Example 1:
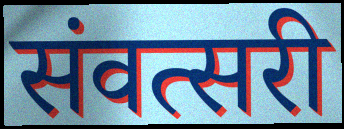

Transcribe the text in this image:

संवत्सरी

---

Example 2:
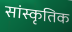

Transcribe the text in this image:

सांस्‍कृतिक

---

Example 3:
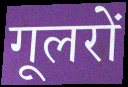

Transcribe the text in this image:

गूलरों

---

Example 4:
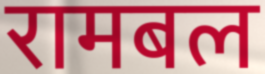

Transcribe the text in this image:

रामबल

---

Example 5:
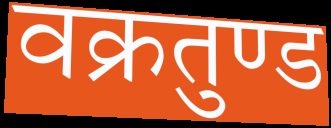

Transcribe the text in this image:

वक्रतुण्ड